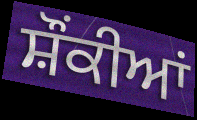
ਸ਼ੌਂਕੀਆਂ